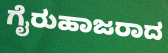
ಗೈರುಹಾಜರಾದ